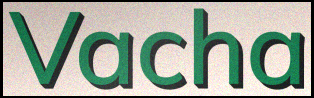
Vacha